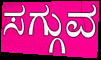
ಸಗ್ಗುವ